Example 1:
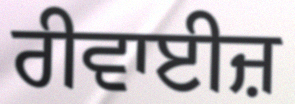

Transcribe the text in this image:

ਰੀਵਾਈਜ਼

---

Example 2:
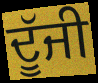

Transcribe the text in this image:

ਦੂੱਜੀ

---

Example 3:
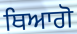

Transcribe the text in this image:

ਥਿਆਗੋ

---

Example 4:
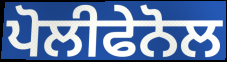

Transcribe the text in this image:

ਪੋਲੀਫੇਨੋਲ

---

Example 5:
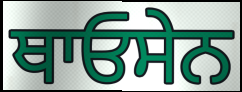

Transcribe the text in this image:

ਥਾਓਸੇਨ